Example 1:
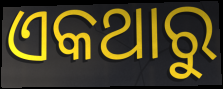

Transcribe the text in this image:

ଏକଥାରୁ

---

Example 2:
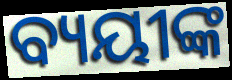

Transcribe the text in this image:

ବ୍ୟୟୀଙ୍କ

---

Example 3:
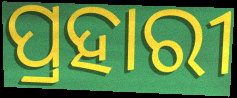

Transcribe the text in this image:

ପ୍ରହାରୀ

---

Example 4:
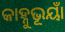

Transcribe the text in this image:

କାହ୍ନୁଭୂୟାଁ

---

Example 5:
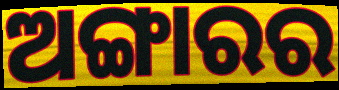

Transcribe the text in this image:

ଅଙ୍ଗାରର